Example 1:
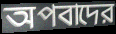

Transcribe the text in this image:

অপবাদের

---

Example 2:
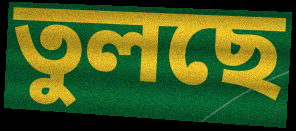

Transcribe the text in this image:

তুলছে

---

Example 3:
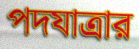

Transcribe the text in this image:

পদযাত্রার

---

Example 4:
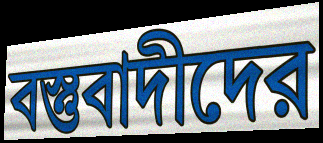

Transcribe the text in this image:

বস্তুবাদীদের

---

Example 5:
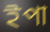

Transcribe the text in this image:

ইপা